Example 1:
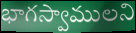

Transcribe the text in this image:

భాగస్వాములని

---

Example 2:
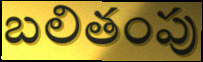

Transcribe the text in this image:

బలితంపు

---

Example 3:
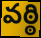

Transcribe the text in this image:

వఠ్ఠి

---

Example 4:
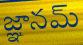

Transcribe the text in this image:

జ్ఞానమ్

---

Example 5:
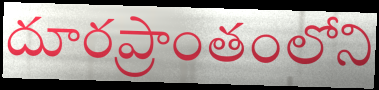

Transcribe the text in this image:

దూరప్రాంతంలోని